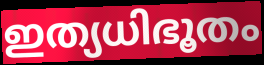
ഇത്യധിഭൂതം